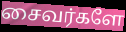
சைவர்களே